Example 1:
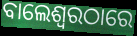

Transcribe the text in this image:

ବାଲେଶ୍ଵରଠାରେ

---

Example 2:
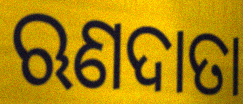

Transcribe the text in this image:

ଋଣଦାତା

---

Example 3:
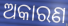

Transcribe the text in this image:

ଅକାରଣ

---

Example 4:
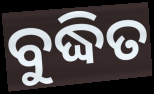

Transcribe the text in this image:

ବୁଦ୍ଧିତ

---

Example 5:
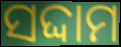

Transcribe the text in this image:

ସଦ୍ଦାମ